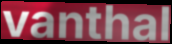
vanthal